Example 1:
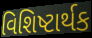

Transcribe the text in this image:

વિશિષ્ટાર્થક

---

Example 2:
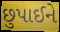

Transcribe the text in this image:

છુપાઈને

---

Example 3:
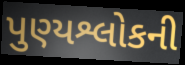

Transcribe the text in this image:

પુણ્યશ્લોકની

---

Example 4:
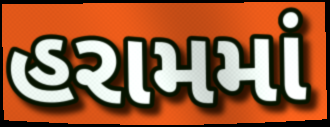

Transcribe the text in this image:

હરામમાં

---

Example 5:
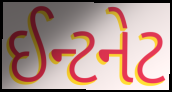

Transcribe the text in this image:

ઈન્ટનેટ